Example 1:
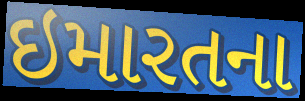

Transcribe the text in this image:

ઇમારતના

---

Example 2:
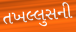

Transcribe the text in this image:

તખલ્લુસની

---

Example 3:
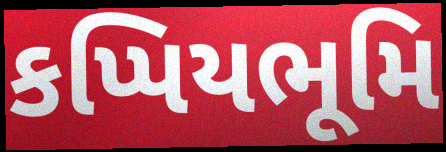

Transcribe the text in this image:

કપ્પિયભૂમિ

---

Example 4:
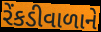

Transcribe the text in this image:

રેંકડીવાળાને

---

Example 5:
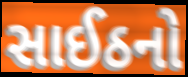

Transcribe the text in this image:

સાઈઠનો